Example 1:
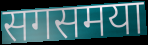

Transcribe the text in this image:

सगसमया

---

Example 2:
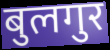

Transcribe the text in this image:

बुलगुर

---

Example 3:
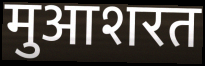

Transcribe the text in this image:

मुआशरत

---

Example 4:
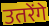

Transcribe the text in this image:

उतरेंगे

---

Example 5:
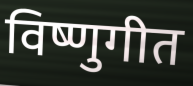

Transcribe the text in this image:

विष्णुगीत